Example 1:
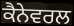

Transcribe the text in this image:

ਕੈਨੇਵਰਲ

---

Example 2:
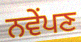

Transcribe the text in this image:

ਨਵੇਂਪਣ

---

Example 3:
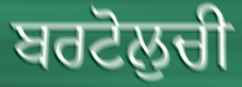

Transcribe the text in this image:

ਬਰਟੋਲੁਚੀ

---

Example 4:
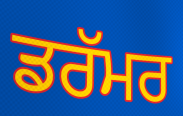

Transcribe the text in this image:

ਡਰੱਮਰ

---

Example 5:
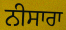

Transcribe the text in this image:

ਨੀਸਾਰਾ